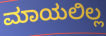
ಮಾಯಲಿಲ್ಲ